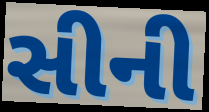
સીની